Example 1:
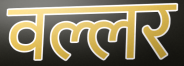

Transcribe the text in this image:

वल्लर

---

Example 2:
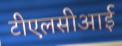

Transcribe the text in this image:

टीएलसीआई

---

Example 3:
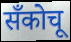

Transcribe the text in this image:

सँकोचू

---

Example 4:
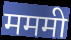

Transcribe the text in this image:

मममी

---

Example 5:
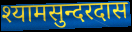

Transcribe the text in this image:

श्यामसुन्दरदास